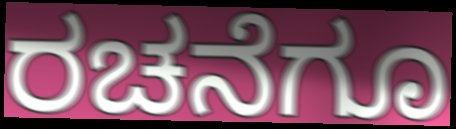
ರಚನೆಗೂ